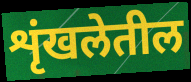
शृंखलेतील